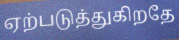
ஏற்படுத்துகிறதே